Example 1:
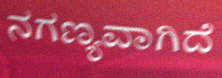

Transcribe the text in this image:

ನಗಣ್ಯವಾಗಿದೆ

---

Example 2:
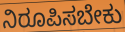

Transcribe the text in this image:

ನಿರೂಪಿಸಬೇಕು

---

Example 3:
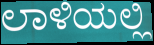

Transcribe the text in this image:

ಲಾಳಿಯಲ್ಲಿ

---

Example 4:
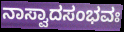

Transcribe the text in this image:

ನಾಸ್ವಾದಸಂಭವಃ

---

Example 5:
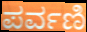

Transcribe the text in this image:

ಪರ್ವಣಿ